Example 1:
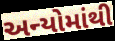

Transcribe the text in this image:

અન્યોમાંથી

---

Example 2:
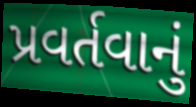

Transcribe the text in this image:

પ્રવર્તવાનું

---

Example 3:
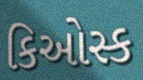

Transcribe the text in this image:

કિઓસ્ક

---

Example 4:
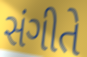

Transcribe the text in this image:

સંગીતે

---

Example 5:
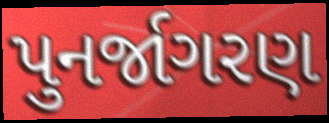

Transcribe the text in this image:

પુનર્જાગરણ